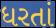
ધરતાં